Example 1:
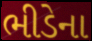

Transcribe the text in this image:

ભીડેના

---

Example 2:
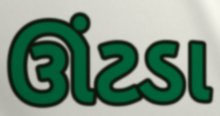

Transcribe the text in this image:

ઊંટડા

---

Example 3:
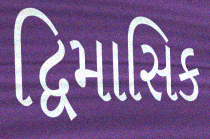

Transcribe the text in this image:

દ્વિમાસિક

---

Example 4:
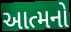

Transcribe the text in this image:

આત્મનો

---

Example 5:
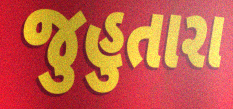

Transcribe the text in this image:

જુહુતારા